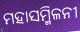
ମହାସମ୍ମିଳନୀ